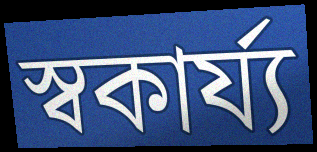
স্বকার্য্য